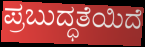
ಪ್ರಬುದ್ಧತೆಯಿದೆ